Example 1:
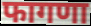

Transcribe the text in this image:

फागणा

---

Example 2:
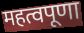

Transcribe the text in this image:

महत्वपूणा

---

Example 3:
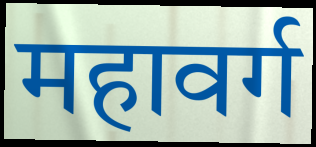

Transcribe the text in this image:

महावर्ग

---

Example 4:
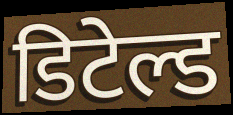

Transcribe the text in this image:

डिटेल्ड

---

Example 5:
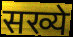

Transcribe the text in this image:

सख्ये